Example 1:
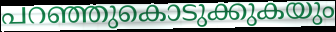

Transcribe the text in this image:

പറഞ്ഞുകൊടുക്കുകയും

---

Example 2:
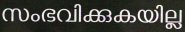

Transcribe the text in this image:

സംഭവിക്കുകയില്ല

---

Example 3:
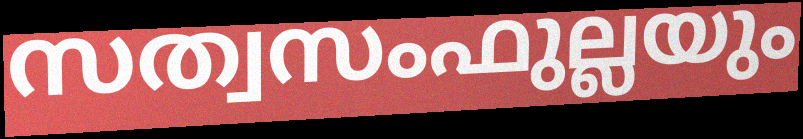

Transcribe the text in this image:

സത്വസംഫുല്ലയും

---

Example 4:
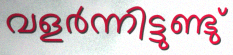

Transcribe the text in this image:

വളർന്നിട്ടുണ്ടു്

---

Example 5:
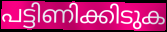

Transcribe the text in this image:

പട്ടിണിക്കിടുക